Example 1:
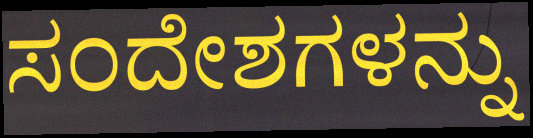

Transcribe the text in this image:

ಸಂದೇಶಗಳನ್ನು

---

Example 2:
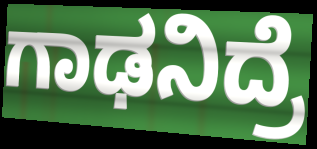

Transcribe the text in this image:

ಗಾಢನಿದ್ರೆ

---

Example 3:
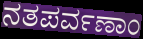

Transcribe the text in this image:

ನತಪರ್ವಣಾಂ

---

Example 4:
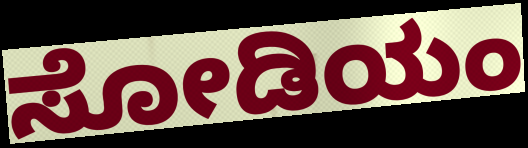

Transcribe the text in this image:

ಸೋಡಿಯಂ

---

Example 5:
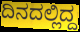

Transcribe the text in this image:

ದಿನದಲ್ಲಿದ್ದ